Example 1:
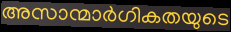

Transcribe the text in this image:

അസാന്മാർഗികതയുടെ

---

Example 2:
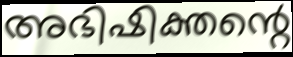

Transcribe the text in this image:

അഭിഷിക്തന്റെ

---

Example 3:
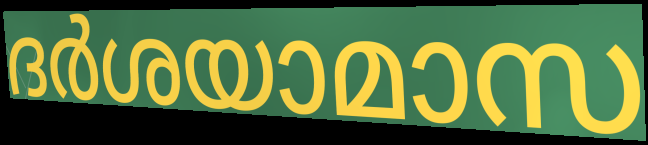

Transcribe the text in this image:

ദർശയാമാസ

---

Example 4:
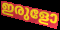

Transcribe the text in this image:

ഇരുളോ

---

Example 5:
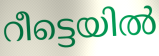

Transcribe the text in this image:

റീട്ടെയിൽ